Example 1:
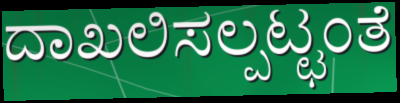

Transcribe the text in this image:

ದಾಖಲಿಸಲ್ಪಟ್ಟಂತೆ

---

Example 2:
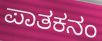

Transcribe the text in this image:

ಪಾತಕನಂ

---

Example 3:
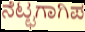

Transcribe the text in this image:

ನೆಟ್ಟಗಾಗಿಪ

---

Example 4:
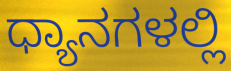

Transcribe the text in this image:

ಧ್ಯಾನಗಳಲ್ಲಿ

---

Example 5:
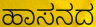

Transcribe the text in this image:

ಹಾಸನದ